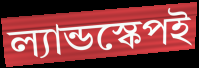
ল্যান্ডস্কেপই